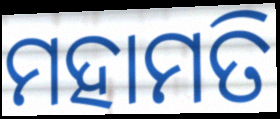
ମହାମତି